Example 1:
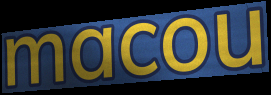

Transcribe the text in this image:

macou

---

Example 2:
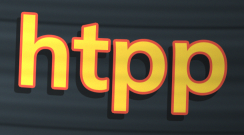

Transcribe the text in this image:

htpp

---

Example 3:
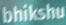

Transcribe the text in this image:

bhikshu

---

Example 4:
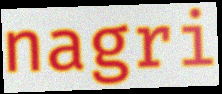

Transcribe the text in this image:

nagri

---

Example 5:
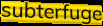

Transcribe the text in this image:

subterfuge